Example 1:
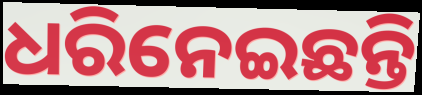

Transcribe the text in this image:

ଧରିନେଇଛନ୍ତି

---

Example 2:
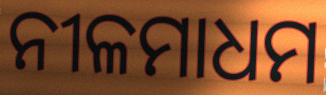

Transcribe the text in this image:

ନୀଳମାଧମ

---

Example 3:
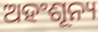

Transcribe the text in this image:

ଅହଂଶୂନ୍ୟ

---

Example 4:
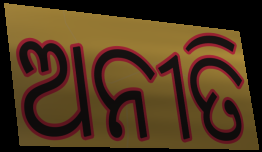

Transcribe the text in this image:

ଅନୀତି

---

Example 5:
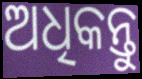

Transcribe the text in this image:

ଅଧିକନ୍ତୁ